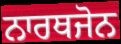
ਨਾਰਥਜੋਨ